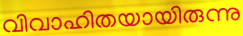
വിവാഹിതയായിരുന്നു